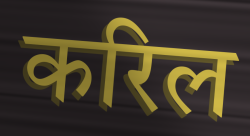
करिल